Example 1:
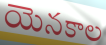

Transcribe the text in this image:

యెనకాల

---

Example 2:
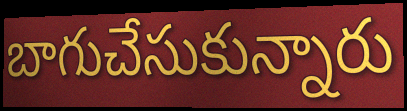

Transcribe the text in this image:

బాగుచేసుకున్నారు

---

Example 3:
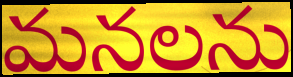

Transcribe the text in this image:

మనలను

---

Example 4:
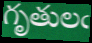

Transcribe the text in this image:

గృతులఁ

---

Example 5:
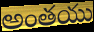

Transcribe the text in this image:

అంతయు